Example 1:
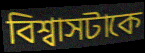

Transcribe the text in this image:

বিশ্বাসটাকে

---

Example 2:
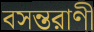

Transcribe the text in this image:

বসন্তরাণী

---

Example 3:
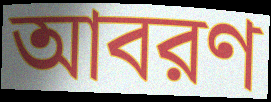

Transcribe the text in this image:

আবরণ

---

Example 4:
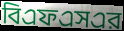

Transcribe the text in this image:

বিএফএসএর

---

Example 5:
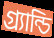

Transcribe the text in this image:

গ্র্যান্ডি